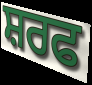
ਸ਼ਰਫ